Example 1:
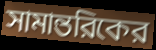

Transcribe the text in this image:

সামান্তরিকের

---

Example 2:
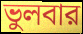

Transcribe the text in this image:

ভুলবার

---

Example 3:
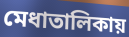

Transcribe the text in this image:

মেধাতালিকায়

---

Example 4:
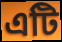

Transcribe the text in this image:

এটি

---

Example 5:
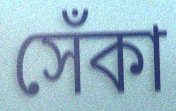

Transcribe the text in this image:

সেঁকা